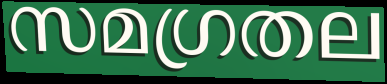
സമഗ്രതല